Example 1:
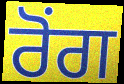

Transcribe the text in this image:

ਰੋਂਗ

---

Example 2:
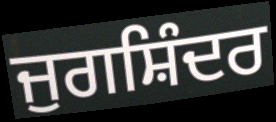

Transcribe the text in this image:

ਜੁਗਸ਼ਿੰਦਰ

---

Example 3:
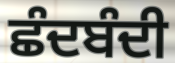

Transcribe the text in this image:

ਛੰਦਬੰਦੀ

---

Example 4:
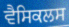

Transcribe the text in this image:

ਵੈਸਿਕਲਸ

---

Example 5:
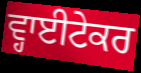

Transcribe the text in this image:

ਵ੍ਹਾਈਟੇਕਰ